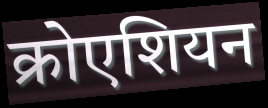
क्रोएशियन